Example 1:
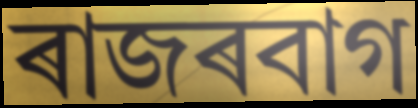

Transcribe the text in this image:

ৰাজৰবাগ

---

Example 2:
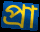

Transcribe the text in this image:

প্ৰা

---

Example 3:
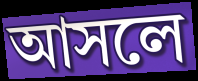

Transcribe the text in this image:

আসলে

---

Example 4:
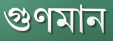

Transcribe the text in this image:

গুণমান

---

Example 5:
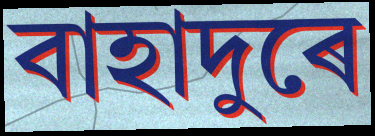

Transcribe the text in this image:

বাহাদুৰে